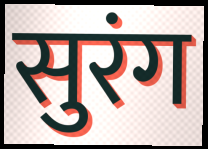
सुरंग